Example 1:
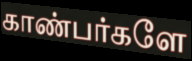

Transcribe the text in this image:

காண்பர்களே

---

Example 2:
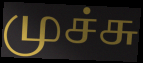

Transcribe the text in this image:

முச்சு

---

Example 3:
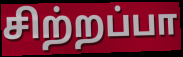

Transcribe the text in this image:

சிற்றப்பா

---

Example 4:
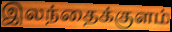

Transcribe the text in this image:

இலந்தைக்குளம்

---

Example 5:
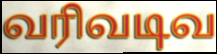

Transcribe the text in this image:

வரிவடிவ